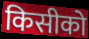
किसीको